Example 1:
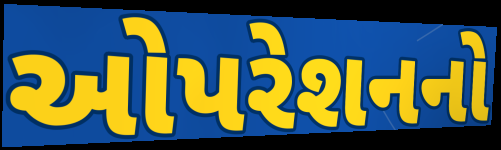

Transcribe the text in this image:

ઓપરેશનનો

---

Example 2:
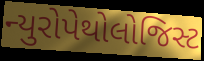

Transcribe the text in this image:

ન્યુરોપેથોલોજિસ્ટ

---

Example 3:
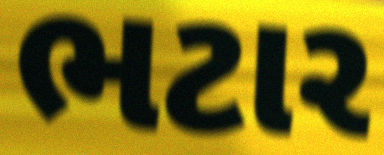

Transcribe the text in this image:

ભટાર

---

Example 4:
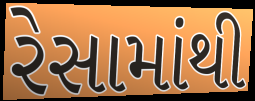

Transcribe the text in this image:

રેસામાંથી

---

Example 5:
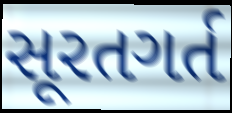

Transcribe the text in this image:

સૂરતગર્ત